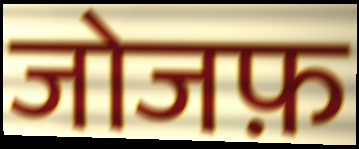
जोजफ़